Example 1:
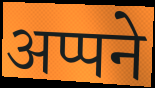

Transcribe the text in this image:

अप्पने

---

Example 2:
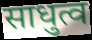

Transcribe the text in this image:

साधुत्व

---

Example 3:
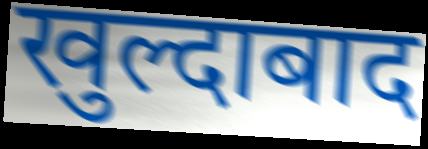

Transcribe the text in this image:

खुल्दाबाद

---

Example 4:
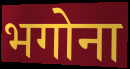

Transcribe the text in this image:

भगोना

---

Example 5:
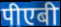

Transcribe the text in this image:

पीएबी